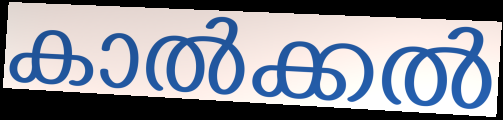
കാൽക്കൽ